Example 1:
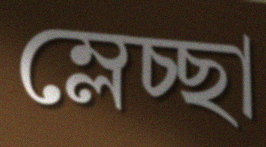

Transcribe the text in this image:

ম্লেচ্ছা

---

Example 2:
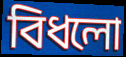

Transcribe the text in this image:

বিধলো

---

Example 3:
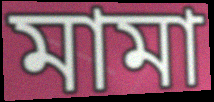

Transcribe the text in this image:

মামা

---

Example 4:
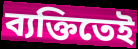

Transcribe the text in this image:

ব্যক্তিতেই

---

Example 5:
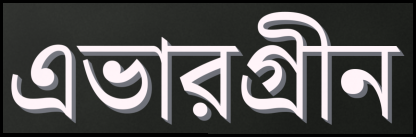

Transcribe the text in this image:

এভারগ্রীন